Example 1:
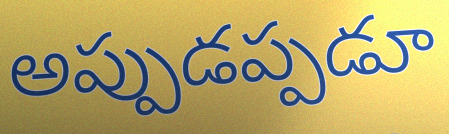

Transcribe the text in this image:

అప్పుడప్పడూ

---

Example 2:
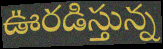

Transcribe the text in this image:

ఊరడిస్తున్న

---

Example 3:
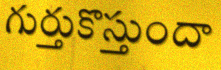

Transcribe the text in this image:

గుర్తుకొస్తుందా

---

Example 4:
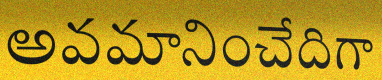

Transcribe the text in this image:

అవమానించేదిగా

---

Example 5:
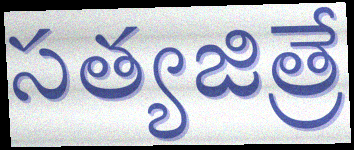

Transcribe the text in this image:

సత్యజిత్రే